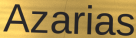
Azarias